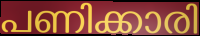
പണിക്കാരി